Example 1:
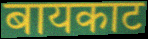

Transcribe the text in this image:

बायकाट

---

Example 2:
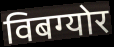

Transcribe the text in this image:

विबग्योर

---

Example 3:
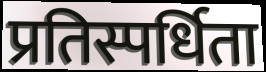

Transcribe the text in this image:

प्रतिस्पर्धिता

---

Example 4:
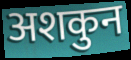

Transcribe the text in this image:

अशकुन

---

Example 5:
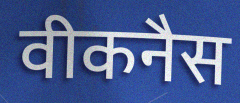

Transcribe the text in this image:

वीकनैस